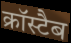
क्रॉस्टैब